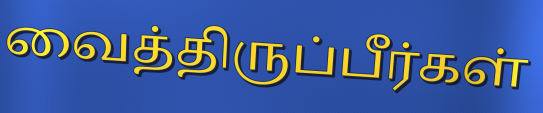
வைத்திருப்பீர்கள்